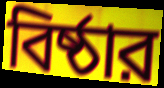
বিষ্ঠার